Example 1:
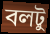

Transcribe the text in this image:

বলটু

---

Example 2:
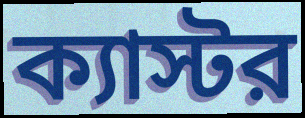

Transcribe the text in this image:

ক্যাস্টর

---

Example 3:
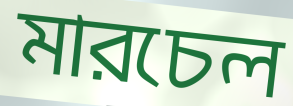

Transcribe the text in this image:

মারচেল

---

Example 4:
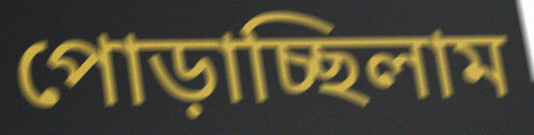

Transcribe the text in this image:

পোড়াচ্ছিলাম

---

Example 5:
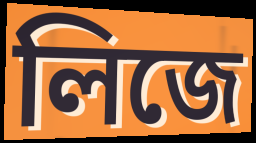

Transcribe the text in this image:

লিজে